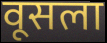
वूसला